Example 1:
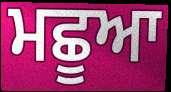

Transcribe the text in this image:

ਮਛੂਆ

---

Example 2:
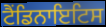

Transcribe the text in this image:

ਟੈਂਡਿਨਾਇਟਿਸ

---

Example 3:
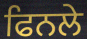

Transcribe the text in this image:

ਫਿਨਲੇ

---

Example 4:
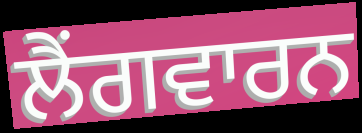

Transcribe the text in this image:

ਲੈਂਗਵਾਰਨ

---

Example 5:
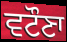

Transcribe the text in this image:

ਵਟੌਣਾ